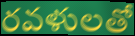
రవళులతో